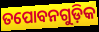
ତପୋବନଗୁଡ଼ିକ